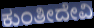
ಕುಂತೀದೇವಿ